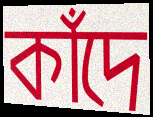
কাঁদে